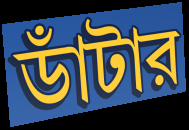
ডাঁটার